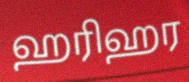
ஹரிஹர